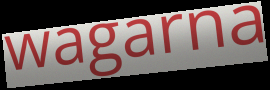
wagarna